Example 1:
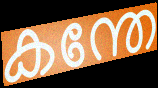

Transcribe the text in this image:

കന്തേ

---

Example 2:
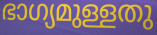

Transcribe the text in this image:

ഭാഗ്യമുള്ളതു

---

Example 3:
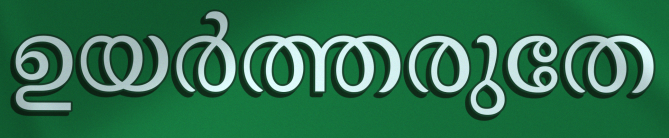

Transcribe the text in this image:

ഉയർത്തരുതേ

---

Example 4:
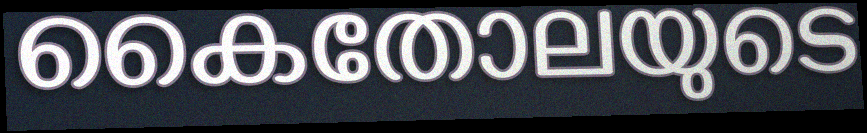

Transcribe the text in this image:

കൈതോലയുടെ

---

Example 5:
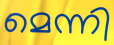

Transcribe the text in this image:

മെന്നി